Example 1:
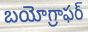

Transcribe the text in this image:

బయోగ్రాఫర్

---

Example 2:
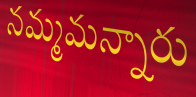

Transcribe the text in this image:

నమ్మమన్నారు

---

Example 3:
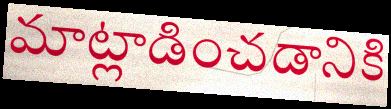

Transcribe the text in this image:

మాట్లాడించడానికి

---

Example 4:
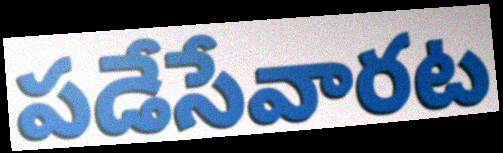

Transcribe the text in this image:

పడేసేవారట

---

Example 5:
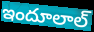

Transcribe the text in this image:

ఇందూలాల్